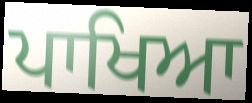
ਪਾਖਿਆ